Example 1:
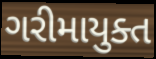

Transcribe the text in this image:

ગરીમાયુક્ત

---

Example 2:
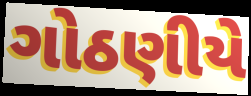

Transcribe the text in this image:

ગોઠણીયે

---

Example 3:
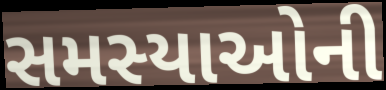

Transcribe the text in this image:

સમસ્યાઓની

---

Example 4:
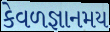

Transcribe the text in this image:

કેવળજ્ઞાનમય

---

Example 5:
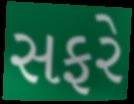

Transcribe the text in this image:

સફરે